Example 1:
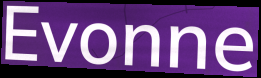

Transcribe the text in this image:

Evonne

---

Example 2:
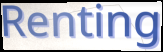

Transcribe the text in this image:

Renting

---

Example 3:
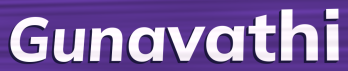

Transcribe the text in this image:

Gunavathi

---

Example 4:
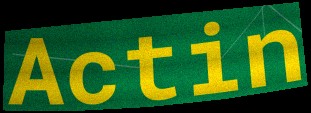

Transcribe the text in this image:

Actin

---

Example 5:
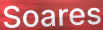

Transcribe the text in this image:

Soares